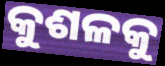
କୁଶଳକୁ